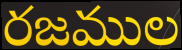
రజముల